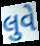
લુવે